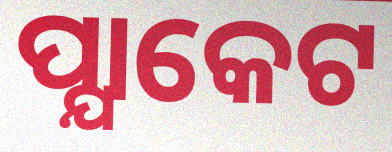
ପ୍ଯାକେଟ